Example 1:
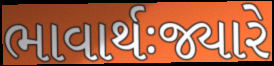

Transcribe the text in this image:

ભાવાર્થઃજ્યારે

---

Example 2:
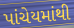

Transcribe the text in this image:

પાંચેયમાંથી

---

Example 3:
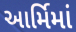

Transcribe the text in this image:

આર્મિમાં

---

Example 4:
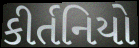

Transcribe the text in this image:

કીર્તનિયો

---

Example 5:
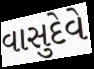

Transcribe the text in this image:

વાસુદેવે